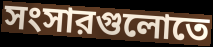
সংসারগুলোতে